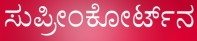
ಸುಪ್ರೀಂಕೋರ್ಟ್‌ನ